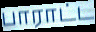
பாராட்ட